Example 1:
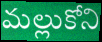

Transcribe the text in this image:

మల్లుకోని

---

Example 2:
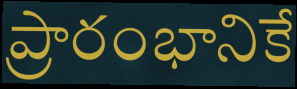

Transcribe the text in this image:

ప్రారంభానికే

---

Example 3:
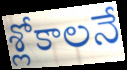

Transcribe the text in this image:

శ్లోకాలనే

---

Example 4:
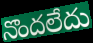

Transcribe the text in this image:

నొందలేదు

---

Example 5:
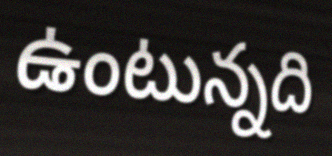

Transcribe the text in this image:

ఉంటున్నది